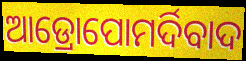
ଆଡ୍ରୋପୋମର୍ଦିବାଦ